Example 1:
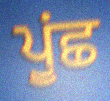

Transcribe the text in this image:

ਪੂਂਛ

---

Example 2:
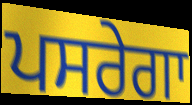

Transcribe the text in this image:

ਪਸਰੇਗਾ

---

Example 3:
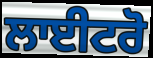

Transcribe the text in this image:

ਲਾਈਟਰੋ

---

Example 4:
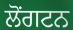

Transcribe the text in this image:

ਲੋਂਗਟਨ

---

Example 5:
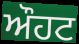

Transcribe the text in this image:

ਔਹਟ